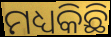
ମଧ୍ୟକିଛି